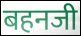
बहनजी